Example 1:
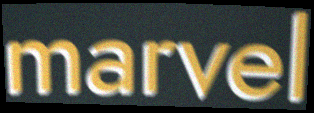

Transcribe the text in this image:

marvel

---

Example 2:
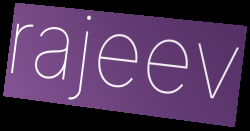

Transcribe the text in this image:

rajeev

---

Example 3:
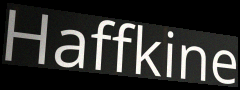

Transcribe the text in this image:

Haffkine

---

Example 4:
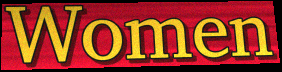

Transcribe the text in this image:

Women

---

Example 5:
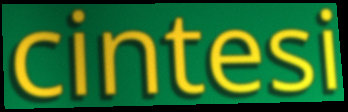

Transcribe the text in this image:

cintesi